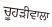
ਚੂਹੜੀਵਾਲਾ